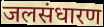
जलसंधारण